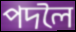
পদলৈ